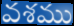
వశము